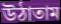
উঠাতাম